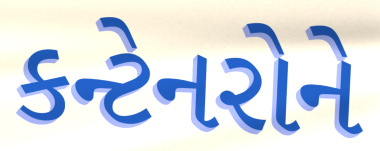
કન્ટેનરોને